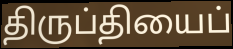
திருப்தியைப்